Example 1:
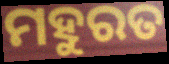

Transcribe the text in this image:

ମହୁରତ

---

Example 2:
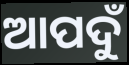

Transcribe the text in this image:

ଆପଦୁଁ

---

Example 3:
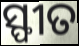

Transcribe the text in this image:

ସ୍ଫୀତ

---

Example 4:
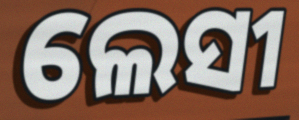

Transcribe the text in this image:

ଲେସୀ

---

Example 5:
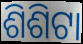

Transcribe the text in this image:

ଶିଶିଟା